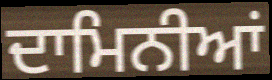
ਦਾਮਿਨੀਆਂ